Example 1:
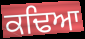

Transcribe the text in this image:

ਕਢਿਆ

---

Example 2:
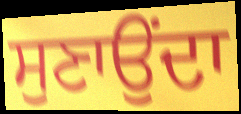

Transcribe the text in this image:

ਸੁਣਾਉਂਦਾ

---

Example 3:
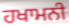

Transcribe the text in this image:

ਹਖਾਮਨੀ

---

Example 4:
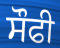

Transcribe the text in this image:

ਸੌਫੀ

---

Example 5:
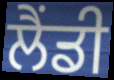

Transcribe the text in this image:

ਲੈਂਡੀ